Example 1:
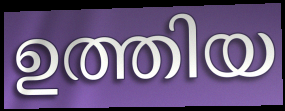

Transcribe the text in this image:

ഉത്തിയ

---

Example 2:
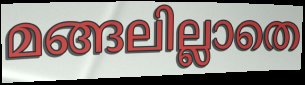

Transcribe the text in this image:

മങ്ങലില്ലാതെ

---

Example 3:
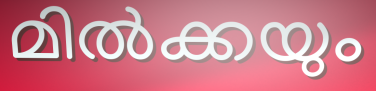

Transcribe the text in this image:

മിൽക്കയും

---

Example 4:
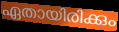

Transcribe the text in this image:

ഏതായിരിക്കും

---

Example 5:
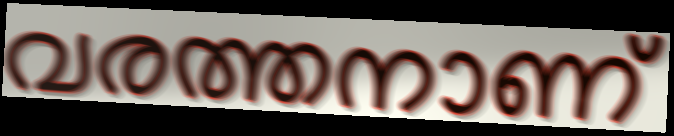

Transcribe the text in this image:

വരത്തനാണ്